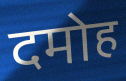
दमोह